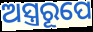
ଅସ୍ତ୍ରରୂପେ